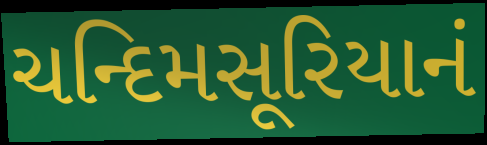
ચન્દિમસૂરિયાનં